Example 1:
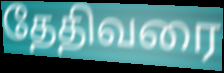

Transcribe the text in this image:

தேதிவரை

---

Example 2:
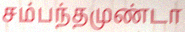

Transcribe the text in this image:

சம்பந்தமுண்டா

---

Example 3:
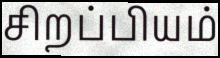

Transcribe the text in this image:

சிறப்பியம்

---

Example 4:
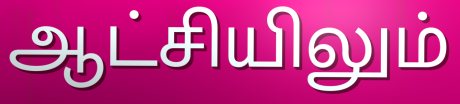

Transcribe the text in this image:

ஆட்சியிலும்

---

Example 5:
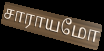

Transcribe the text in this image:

சாராயமோ